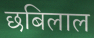
छबिलाल